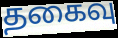
தகைவு